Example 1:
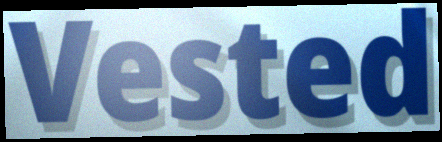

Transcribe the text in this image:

Vested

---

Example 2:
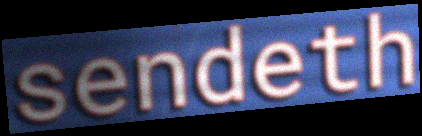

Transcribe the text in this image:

sendeth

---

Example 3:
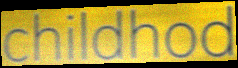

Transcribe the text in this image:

childhod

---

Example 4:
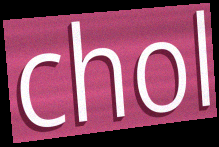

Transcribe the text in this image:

chol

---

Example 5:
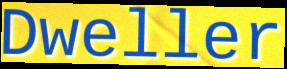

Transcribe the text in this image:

Dweller